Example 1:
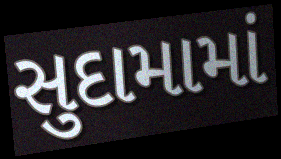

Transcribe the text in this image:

સુદામામાં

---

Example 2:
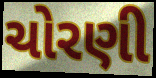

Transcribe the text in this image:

ચોરણી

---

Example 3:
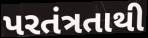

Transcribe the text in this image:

પરતંત્રતાથી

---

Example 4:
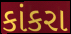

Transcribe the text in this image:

કાંકરા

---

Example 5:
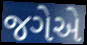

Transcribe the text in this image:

જગેએ